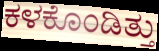
ಕಳಕೊಂಡಿತ್ತು